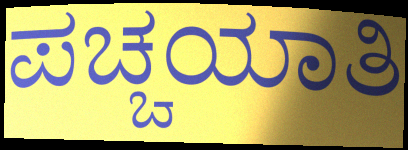
ಪಚ್ಚಯಾತಿ